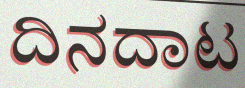
ದಿನದಾಟ